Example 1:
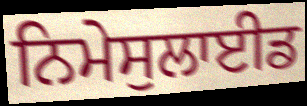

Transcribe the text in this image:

ਨਿਮੇਸੁਲਾਈਡ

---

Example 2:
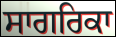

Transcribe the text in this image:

ਸਾਗਰਿਕਾ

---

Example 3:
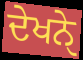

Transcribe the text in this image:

ਦੇਖਨੑੇ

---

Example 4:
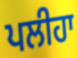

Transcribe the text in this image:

ਪਲੀਹਾ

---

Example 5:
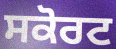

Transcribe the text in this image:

ਸਕੋਰਟ